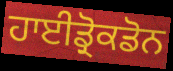
ਹਾਈਡ੍ਰੋਕਡੋਨ